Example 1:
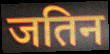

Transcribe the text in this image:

जतिन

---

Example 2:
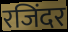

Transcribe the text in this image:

रजिंदर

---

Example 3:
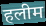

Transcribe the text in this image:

हलीम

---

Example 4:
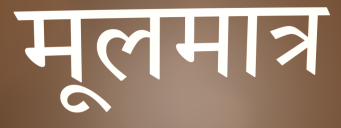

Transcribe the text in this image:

मूलमात्र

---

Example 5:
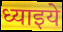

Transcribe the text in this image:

ध्याइये